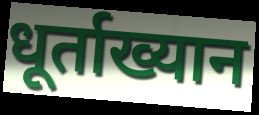
धूर्ताख्यान